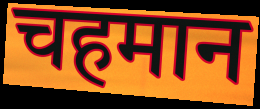
चहमान